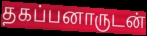
தகப்பனாருடன்